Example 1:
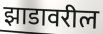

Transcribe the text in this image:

झाडावरील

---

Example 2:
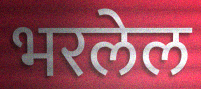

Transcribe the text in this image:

भरलेल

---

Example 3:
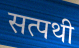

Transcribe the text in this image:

सत्पथी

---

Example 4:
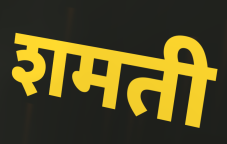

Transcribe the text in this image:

शमती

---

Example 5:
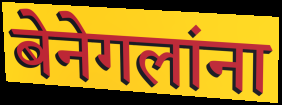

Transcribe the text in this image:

बेनेगलांना